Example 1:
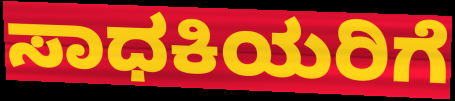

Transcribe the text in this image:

ಸಾಧಕಿಯರಿಗೆ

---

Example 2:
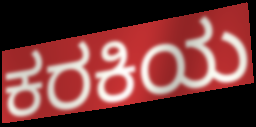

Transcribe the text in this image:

ಕರಕಿಯ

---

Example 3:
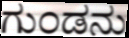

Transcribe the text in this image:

ಗುಂಡನು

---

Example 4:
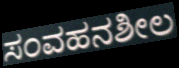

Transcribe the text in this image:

ಸಂವಹನಶೀಲ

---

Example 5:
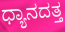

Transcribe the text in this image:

ಧ್ಯಾನದತ್ತ